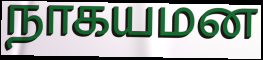
நாகயமன